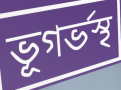
ভূগর্ভস্থ